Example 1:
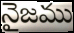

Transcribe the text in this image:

నైజము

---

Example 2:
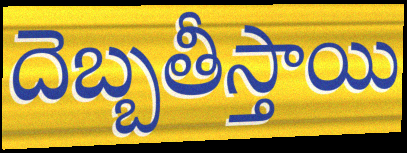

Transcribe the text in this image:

దెబ్బతీస్తాయి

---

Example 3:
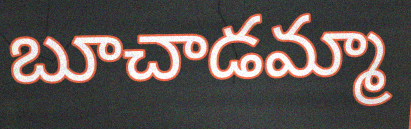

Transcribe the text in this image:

బూచాడమ్మా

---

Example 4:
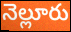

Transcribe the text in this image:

నెల్లూరు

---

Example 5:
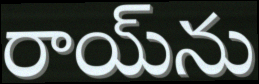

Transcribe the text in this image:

రాయ్‌ను